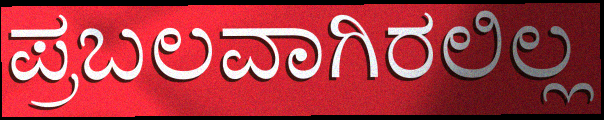
ಪ್ರಬಲವಾಗಿರಲಿಲ್ಲ